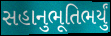
સહાનુભૂતિભર્યું